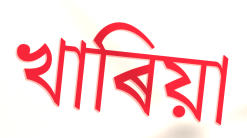
খাৰিয়া